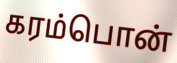
கரம்பொன்